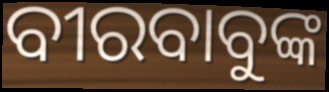
ବୀରବାବୁଙ୍କ